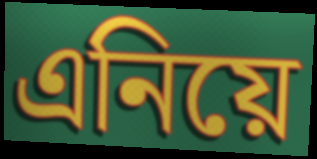
এনিয়ে